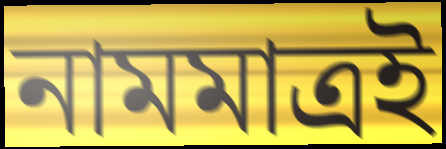
নামমাত্রই